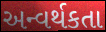
અન્વર્થકતા